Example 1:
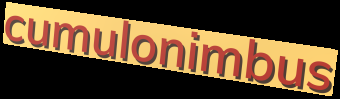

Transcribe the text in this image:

cumulonimbus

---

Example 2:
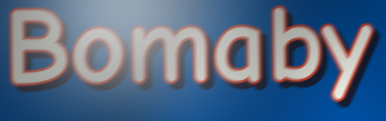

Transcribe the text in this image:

Bomaby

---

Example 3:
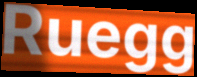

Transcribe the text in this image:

Ruegg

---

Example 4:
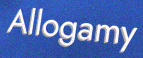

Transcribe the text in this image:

Allogamy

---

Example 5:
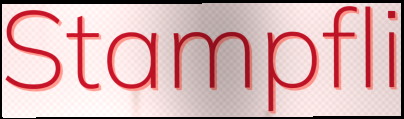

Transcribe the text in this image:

Stampfli